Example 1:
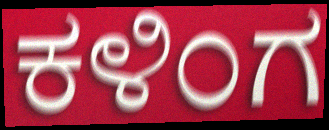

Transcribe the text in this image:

ಕಳಿಂಗ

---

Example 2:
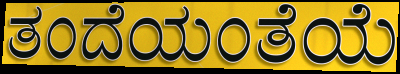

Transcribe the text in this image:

ತಂದೆಯಂತೆಯೆ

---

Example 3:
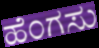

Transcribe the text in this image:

ಹೆಂಗಸು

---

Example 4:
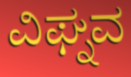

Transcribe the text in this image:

ವಿಘ್ನವ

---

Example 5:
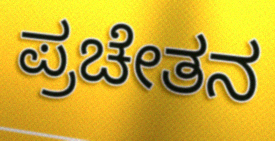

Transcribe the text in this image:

ಪ್ರಚೇತನ